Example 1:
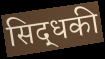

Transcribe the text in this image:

सिद्धकी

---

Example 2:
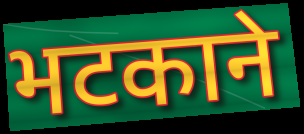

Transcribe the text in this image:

भटकाने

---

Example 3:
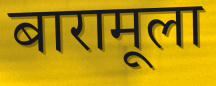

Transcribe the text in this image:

बारामूला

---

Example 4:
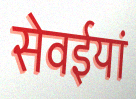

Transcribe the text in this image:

सेवईयां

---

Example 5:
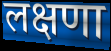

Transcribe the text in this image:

लक्षणा